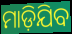
ମାଡ଼ିଯିବ